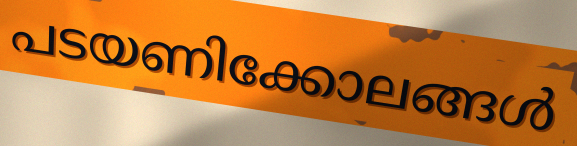
പടയണിക്കോലങ്ങൾ